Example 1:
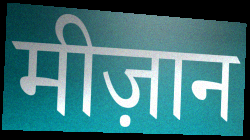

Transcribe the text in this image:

मीज़ान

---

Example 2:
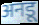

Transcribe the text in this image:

अनडू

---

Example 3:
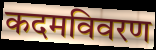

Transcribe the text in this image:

कदमविवरण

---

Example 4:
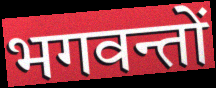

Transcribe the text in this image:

भगवन्तों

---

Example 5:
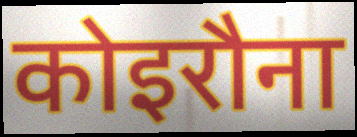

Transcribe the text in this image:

कोइरौना